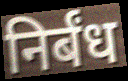
निर्बंध